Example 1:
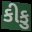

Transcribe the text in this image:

કીકુ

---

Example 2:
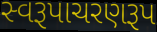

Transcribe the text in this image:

સ્વરૂપાચરણરૂપ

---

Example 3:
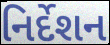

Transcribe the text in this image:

નિર્દેશન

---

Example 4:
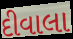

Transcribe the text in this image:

દીવાલા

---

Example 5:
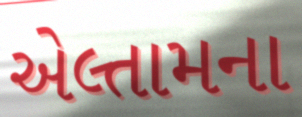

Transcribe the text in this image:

એલ્તામના